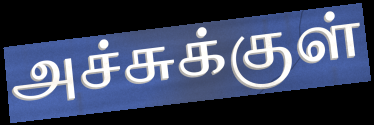
அச்சுக்குள்